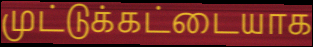
முட்டுக்கட்டையாக